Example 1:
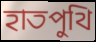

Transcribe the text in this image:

হাতপুথি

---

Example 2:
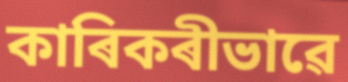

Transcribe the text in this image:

কাৰিকৰীভাৱে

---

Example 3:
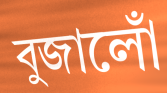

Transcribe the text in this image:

বুজালোঁ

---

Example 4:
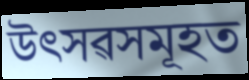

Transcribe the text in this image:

উৎসৱসমূহত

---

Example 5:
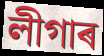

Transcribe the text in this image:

লীগাৰ